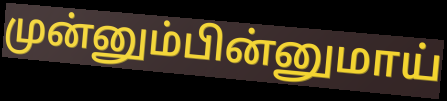
முன்னும்பின்னுமாய்